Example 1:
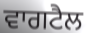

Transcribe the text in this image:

ਵਾਗਟੈਲ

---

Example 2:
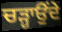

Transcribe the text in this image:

ਚੜ੍ਹਾਉਂਦੇ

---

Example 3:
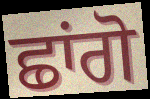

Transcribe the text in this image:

ਛਾਂਗੋ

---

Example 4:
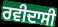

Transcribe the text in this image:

ਰਵੀਦਾਸੀ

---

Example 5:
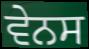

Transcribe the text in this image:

ਵੇਨਸ